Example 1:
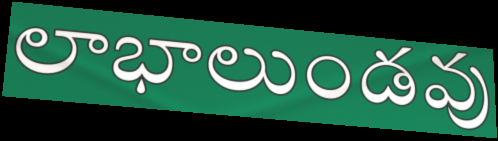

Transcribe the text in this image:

లాభాలుండవు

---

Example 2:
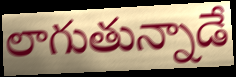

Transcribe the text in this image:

లాగుతున్నాడే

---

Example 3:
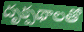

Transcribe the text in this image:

దృక్పథాలతో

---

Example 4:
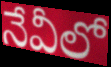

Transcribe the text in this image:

నేవీలో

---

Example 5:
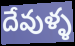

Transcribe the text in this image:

దేవుళ్ళ